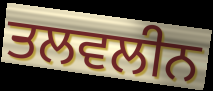
ਤਲਵਲੀਨ